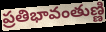
ప్రతిభావంతుణ్ణి